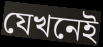
যেখনেই